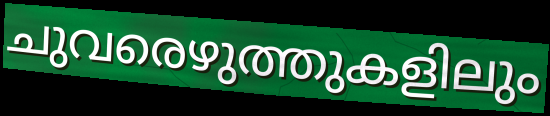
ചുവരെഴുത്തുകളിലും